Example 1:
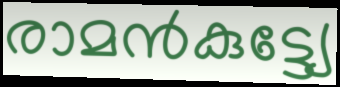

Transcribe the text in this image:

രാമൻകുട്ട്യേ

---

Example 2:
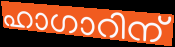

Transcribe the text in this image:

ഹാഗാറിന്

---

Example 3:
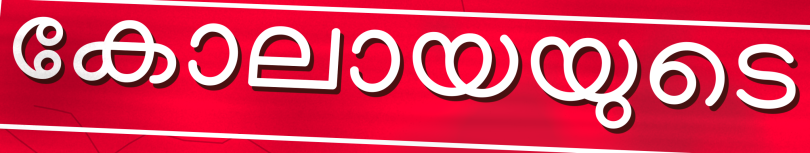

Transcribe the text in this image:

കോലായയുടെ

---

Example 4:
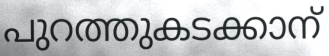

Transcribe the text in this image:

പുറത്തുകടക്കാന്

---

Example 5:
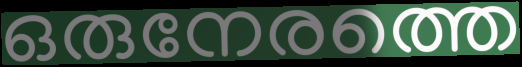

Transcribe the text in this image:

ഒരുനേരത്തെ